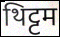
थिट्टम